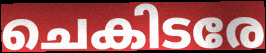
ചെകിടരേ